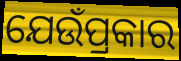
ଯେଉଁପ୍ରକାର